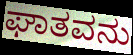
ಘಾತವನು